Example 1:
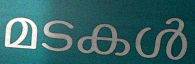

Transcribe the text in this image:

മടകൾ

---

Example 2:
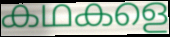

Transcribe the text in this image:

കഥകളെ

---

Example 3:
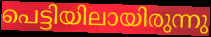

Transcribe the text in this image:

പെട്ടിയിലായിരുന്നു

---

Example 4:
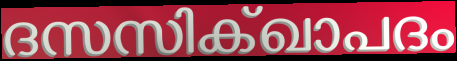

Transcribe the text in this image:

ദസസിക്ഖാപദം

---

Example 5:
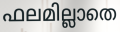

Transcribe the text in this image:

ഫലമില്ലാതെ